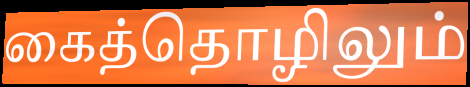
கைத்தொழிலும்